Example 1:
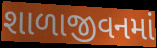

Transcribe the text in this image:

શાળાજીવનમાં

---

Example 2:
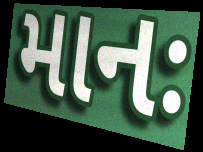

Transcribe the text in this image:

માનઃ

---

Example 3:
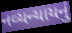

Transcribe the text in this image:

નવ્યન્યાયનું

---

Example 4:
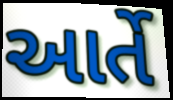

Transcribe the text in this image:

આર્તે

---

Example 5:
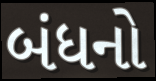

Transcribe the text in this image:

બંધનો